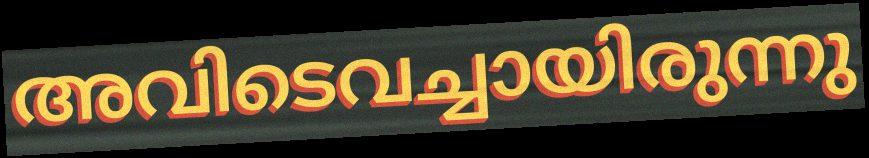
അവിടെവച്ചായിരുന്നു